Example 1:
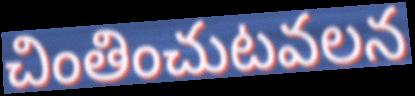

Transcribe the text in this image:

చింతించుటవలన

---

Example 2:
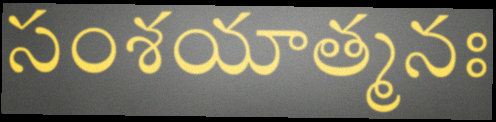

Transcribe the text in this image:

సంశయాత్మనః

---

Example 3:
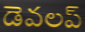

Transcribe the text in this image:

డెవలప్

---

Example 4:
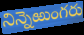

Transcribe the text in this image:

నిన్నెఱుంగరు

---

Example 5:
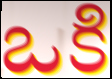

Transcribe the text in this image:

ఒకి